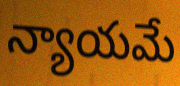
న్యాయమే